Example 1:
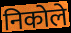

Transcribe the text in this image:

निकोले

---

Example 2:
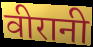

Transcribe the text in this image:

वीरानी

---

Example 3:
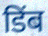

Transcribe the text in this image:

डिंब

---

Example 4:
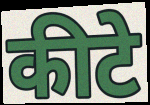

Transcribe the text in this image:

कीटे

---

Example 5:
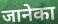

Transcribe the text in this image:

जानेका